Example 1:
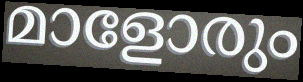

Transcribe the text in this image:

മാളോരും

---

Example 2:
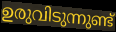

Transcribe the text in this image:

ഉരുവിടുന്നുണ്ട്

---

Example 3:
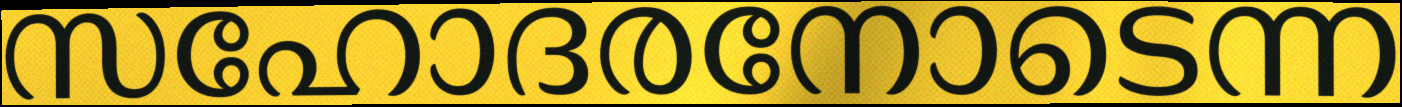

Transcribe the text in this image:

സഹോദരനോടെന്ന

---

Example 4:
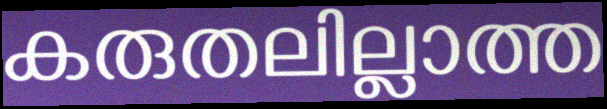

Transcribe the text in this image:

കരുതലില്ലാത്ത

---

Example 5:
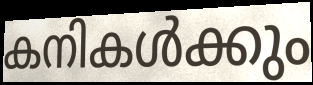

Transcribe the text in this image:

കനികൾക്കും